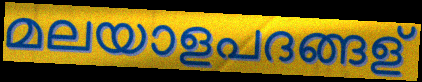
മലയാളപദങ്ങള്